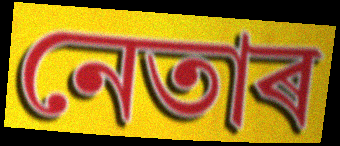
নেতাৰ